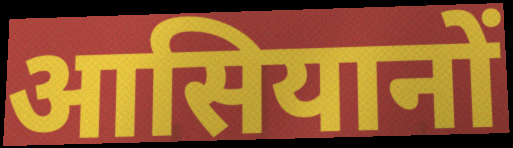
आसियानों